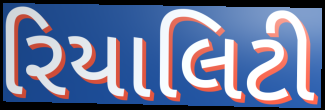
રિયાલિટી